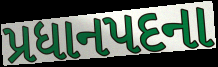
પ્રધાનપદના